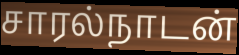
சாரல்நாடன்